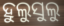
ହୁଲୁସୁଲୁ